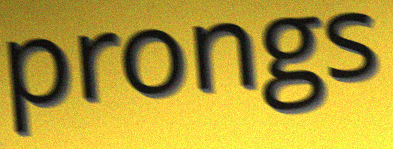
prongs